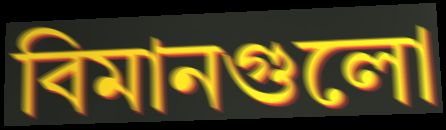
বিমানগুলো